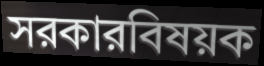
সরকারবিষয়ক